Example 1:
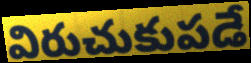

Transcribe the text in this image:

విరుచుకుపడే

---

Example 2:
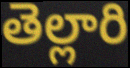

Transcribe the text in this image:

తెల్లారి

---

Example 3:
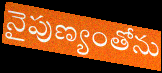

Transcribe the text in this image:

నైపుణ్యంతోను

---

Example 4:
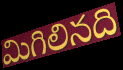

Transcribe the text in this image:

మిగిలినది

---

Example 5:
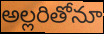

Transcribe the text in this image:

అల్లరితోనూ